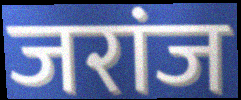
जरांज